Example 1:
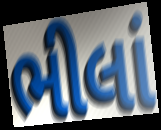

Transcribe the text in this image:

ભીલાં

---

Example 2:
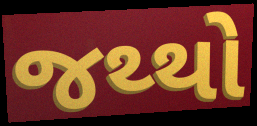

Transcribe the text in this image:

જથ્થો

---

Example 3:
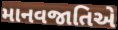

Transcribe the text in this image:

માનવજાતિએ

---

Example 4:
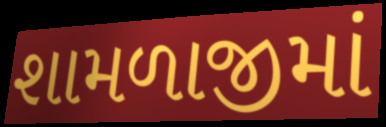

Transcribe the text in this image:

શામળાજીમાં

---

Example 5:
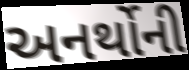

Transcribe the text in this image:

અનર્થોની